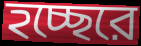
হচ্ছেরে